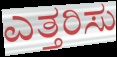
ಎತ್ತರಿಸು